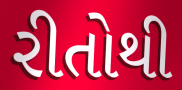
રીતોથી